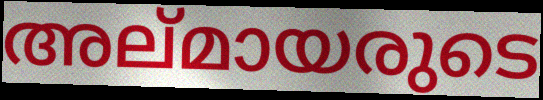
അല്മായരുടെ